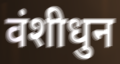
वंशीधुन